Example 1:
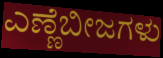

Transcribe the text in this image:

ಎಣ್ಣೆಬೀಜಗಳು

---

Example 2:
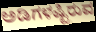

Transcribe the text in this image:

ಅಡಿಗಳಷ್ಟಿರುವ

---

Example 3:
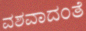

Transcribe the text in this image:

ವಶವಾದಂತೆ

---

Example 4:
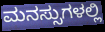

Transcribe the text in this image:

ಮನಸ್ಸುಗಳಲ್ಲಿ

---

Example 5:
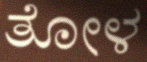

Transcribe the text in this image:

ತೋಳ